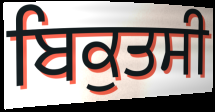
ਬਿਕੁਤਸੀ